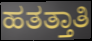
ಹತತ್ತಾತಿ